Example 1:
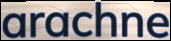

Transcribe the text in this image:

arachne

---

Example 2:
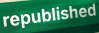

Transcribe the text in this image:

republished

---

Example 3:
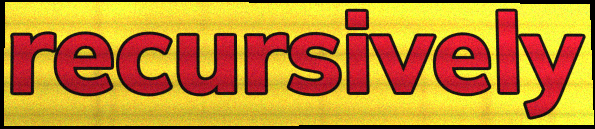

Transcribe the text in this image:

recursively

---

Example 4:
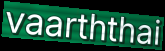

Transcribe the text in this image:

vaarththai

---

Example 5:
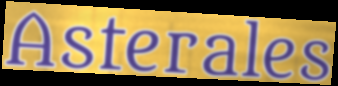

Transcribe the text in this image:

Asterales